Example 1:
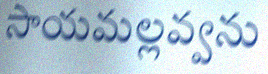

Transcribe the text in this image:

సాయమల్లవ్వను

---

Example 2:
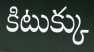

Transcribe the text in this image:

కిటుక్కు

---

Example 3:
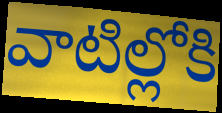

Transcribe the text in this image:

వాటిల్లోకి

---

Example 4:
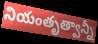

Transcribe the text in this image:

నియంతృత్వాన్నీ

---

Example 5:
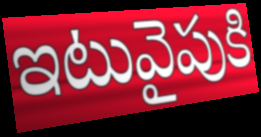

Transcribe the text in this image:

ఇటువైపుకి